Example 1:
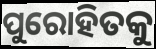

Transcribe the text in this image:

ପୁରୋହିତକୁ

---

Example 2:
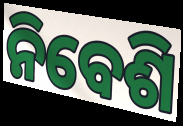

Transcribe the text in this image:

ନିବେଶି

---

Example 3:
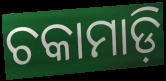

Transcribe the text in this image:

ଚକାମାଡ଼ି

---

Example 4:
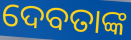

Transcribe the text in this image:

ଦେବତାଙ୍କ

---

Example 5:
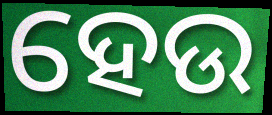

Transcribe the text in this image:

ହେଉ